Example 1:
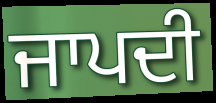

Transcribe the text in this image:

ਜਾਪਦੀ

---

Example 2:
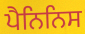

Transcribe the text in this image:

ਪੈਨਿਨਿਸ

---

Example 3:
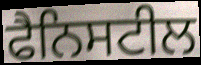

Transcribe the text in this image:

ਫੈਨਿਸਟੀਲ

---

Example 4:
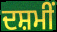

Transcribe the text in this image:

ਦਸ਼ਮੀਂ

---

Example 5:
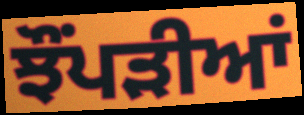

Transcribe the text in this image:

ਝੌਂਪੜੀਆਂ